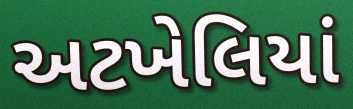
અટખેલિયાં